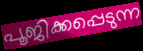
പൂജിക്കപ്പെടുന്ന